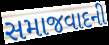
સમાજવાદની